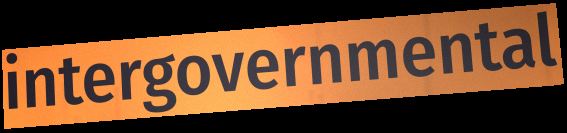
intergovernmental